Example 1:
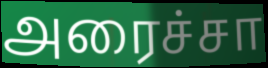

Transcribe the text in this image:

அரைச்சா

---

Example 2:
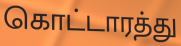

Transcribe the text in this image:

கொட்டாரத்து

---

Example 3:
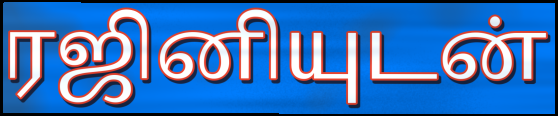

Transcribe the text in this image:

ரஜினியுடன்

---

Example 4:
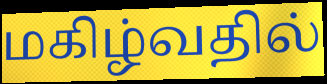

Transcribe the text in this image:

மகிழ்வதில்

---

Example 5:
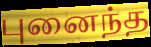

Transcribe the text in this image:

புனைந்த